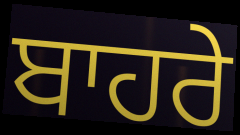
ਬਾਹਰੇ